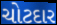
ચોટદાર